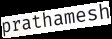
prathamesh